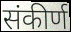
संकीर्ण